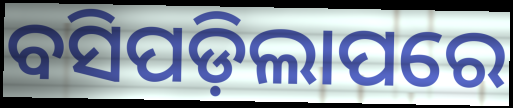
ବସିପଡ଼ିଲାପରେ